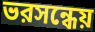
ভরসন্ধেয়